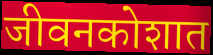
जीवनकोशात